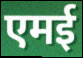
एमई